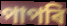
পাপৰি